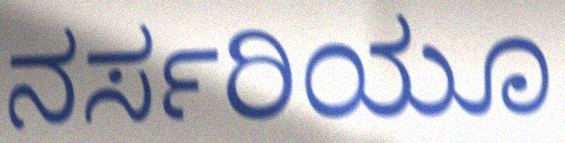
ನರ್ಸರಿಯೂ